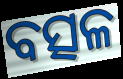
ବତ୍ସଳ